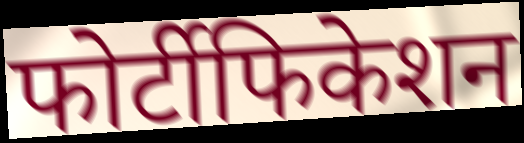
फोर्टीफिकेशन